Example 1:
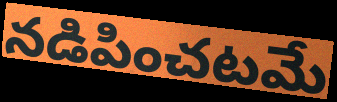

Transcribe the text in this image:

నడిపించటమే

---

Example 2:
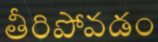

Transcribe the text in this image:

తీరిపోవడం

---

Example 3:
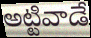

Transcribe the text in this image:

అట్టివాడే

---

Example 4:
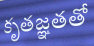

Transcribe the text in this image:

కృతజ్ఞతతో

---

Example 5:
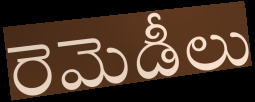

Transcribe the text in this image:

రెమెడీలు